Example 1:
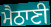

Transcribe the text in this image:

ਮੈਠਾਣੀ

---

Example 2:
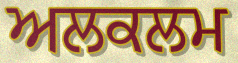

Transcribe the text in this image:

ਅਲਕਲਮ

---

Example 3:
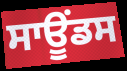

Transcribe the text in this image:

ਸਾਊਂਡਸ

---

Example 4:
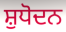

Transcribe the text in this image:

ਸ਼ੁਧੋਦਨ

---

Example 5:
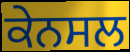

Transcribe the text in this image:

ਕੇਨਸਲ